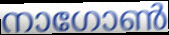
നാഗോൺ